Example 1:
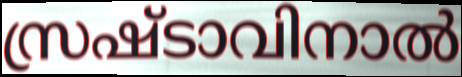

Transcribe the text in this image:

സ്രഷ്ടാവിനാൽ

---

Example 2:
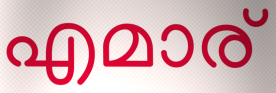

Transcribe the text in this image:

എമാര്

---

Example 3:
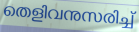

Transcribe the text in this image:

തെളിവനുസരിച്ച്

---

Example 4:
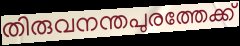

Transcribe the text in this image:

തിരുവനന്തപുരത്തേക്ക്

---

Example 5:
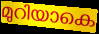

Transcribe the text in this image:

മുറിയാകെ